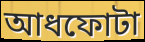
আধফোটা